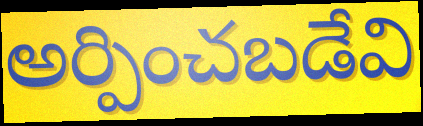
అర్పించబడేవి